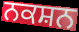
ਨਕਸ਼ਨ